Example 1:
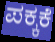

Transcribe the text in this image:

ಪಕ್ಕಕೆ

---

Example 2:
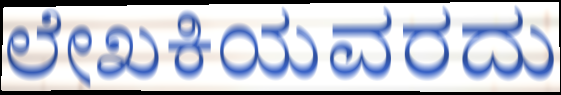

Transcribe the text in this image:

ಲೇಖಕಿಯವರದು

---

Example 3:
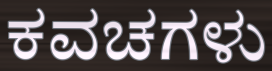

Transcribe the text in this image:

ಕವಚಗಳು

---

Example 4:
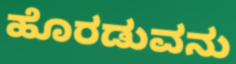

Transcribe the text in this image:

ಹೊರಡುವನು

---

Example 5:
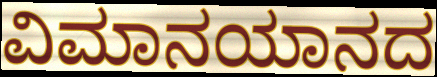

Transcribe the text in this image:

ವಿಮಾನಯಾನದ